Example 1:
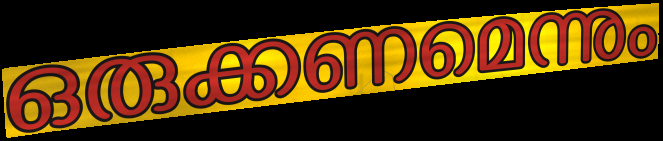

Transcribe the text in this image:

ഒരുക്കണമെന്നും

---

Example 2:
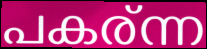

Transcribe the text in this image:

പകര്ന്ന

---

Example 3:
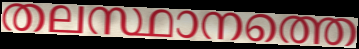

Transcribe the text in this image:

തലസ്ഥാനത്തെ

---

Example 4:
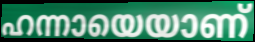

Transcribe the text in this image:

ഹന്നായെയാണ്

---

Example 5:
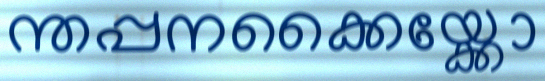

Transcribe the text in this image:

ന്തപ്പനക്കൈയ്ക്കോ